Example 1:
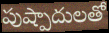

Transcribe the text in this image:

పుష్పాదులతో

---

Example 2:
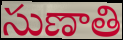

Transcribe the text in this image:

సుణాతి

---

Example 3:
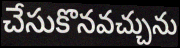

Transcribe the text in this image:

చేసుకొనవచ్చును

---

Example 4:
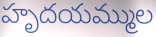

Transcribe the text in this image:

హృదయమ్ముల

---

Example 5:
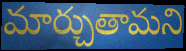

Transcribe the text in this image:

మార్చుతామని